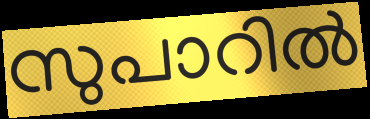
സുപാറിൽ